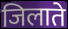
जिलाते